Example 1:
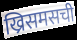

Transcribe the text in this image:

ख्रिसमसची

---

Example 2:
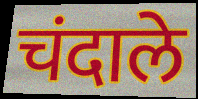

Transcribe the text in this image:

चंदाले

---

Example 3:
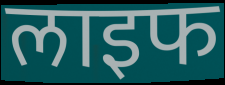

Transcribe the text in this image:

लाइफ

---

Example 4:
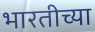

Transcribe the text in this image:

भारतीच्‍या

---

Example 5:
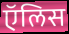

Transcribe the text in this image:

ऍलिस